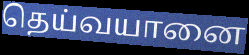
தெய்வயானை